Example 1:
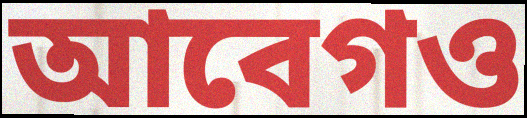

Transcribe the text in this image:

আবেগও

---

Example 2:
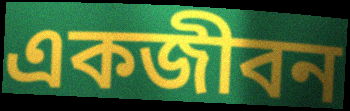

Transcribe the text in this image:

একজীবন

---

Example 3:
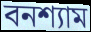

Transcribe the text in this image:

বনশ্যাম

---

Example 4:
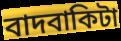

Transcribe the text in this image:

বাদবাকিটা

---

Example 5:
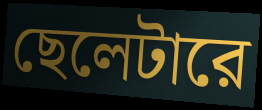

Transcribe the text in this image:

ছেলেটারে